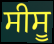
ਸੀਸੂ